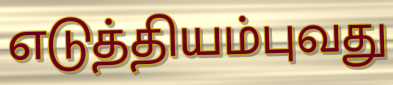
எடுத்தியம்புவது